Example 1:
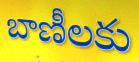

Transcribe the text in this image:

బాణీలకు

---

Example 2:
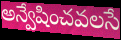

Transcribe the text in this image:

అన్వేషించవలసే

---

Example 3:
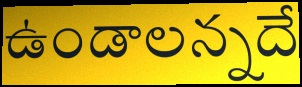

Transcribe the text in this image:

ఉండాలన్నదే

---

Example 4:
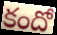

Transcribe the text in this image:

కందో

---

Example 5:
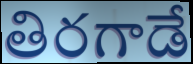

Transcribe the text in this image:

తిరగాడే